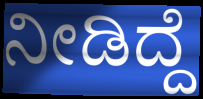
ನೀಡಿದ್ದೆ